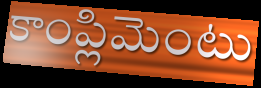
కాంప్లిమెంటు